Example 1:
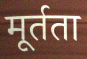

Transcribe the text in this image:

मूर्तता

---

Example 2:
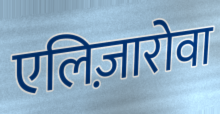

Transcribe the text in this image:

एलिज़ारोवा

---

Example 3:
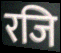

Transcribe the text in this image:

रजि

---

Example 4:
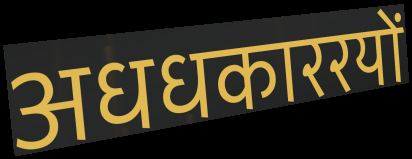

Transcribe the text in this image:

अधधकाररयों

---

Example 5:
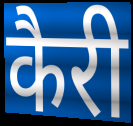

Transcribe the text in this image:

कैरी